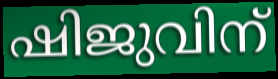
ഷിജുവിന്